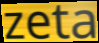
zeta